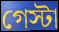
গেস্টা